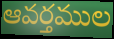
ఆవర్తముల